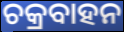
ଚକ୍ରବାହନ